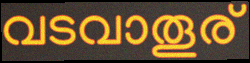
വടവാതൂര്